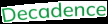
Decadence